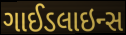
ગાઈડલાઇન્સ